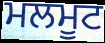
ਮਲਮੂਟ